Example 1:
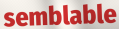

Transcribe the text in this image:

semblable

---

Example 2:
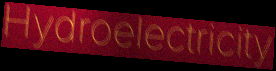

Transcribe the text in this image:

Hydroelectricity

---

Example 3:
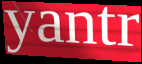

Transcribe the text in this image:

yantr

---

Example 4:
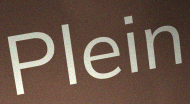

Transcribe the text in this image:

Plein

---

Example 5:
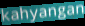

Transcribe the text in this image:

kahyangan